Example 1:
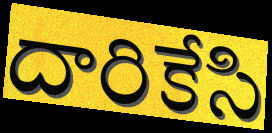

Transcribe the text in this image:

దారికేసి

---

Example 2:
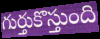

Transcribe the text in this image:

గుర్తుకొస్తుంది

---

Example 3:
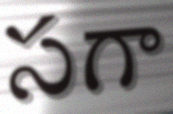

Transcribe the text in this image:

సగా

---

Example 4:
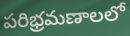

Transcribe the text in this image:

పరిభ్రమణాలలో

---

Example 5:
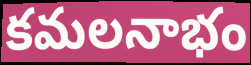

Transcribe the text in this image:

కమలనాభం